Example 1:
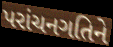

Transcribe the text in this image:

પરાંચનગતિને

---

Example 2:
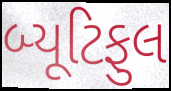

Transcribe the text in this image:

બ્યૂટિફુલ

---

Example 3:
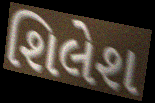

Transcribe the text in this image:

શિલેશ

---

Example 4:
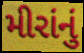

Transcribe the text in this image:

મીરાંનું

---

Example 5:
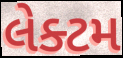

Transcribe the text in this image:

લેક્ટમ